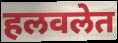
हलवलेत